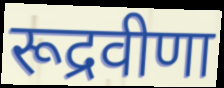
रूद्रवीणा